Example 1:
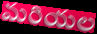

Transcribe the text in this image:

మరియల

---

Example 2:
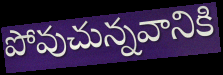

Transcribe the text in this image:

పోవుచున్నవానికి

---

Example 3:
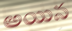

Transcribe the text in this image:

అయిన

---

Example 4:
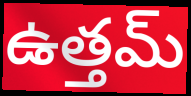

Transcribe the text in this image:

ఉత్తమ్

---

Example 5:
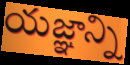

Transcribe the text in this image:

యజ్ఞాన్ని